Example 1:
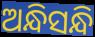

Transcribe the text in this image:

ଅନ୍ଧିସନ୍ଧି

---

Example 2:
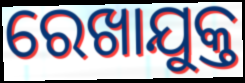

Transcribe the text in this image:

ରେଖାଯୁକ୍ତ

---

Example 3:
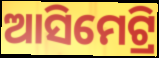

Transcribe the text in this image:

ଆସିମେଟ୍ରି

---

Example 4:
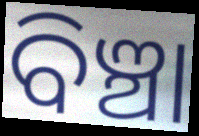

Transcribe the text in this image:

ବିଞ୍ଚା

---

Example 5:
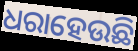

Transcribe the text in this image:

ଧରାହେଉଛି